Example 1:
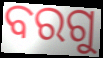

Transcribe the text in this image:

ବରଗୁ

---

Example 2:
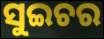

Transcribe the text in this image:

ସୁଇଚର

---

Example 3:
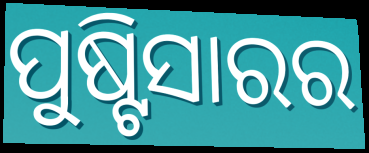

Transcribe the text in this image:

ପୁଷ୍ଟିସାରର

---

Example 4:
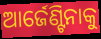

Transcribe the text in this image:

ଆର୍ଜେଣ୍ଟିନାକୁ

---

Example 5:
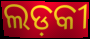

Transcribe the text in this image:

ଲଡ଼କୀ